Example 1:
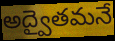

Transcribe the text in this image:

అద్వైతమనే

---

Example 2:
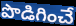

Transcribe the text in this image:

పొడిగించే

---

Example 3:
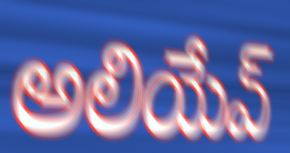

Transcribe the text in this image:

అలియేవ్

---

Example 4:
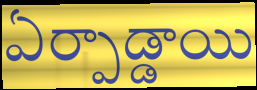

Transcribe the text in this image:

ఏర్పాడ్డాయి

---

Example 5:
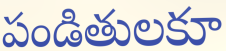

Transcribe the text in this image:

పండితులకూ